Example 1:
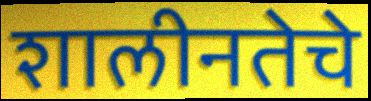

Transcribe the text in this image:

शालीनतेचे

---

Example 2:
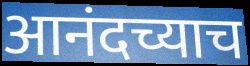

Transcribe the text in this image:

आनंदच्याच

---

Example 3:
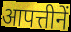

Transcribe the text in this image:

आपत्तीनें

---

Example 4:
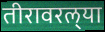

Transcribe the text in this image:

तीरावरल्या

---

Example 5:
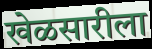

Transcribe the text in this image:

खेळसारीला